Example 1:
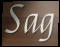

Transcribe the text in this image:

Sag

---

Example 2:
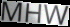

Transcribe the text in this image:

MHW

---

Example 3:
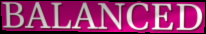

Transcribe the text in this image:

BALANCED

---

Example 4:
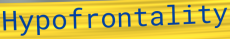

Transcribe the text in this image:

Hypofrontality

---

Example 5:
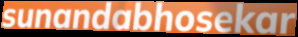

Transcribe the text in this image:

sunandabhosekar